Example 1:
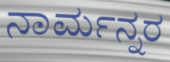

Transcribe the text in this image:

ನಾರ್ಮನ್ನರ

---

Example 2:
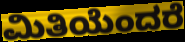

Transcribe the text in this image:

ಮಿತಿಯೆಂದರೆ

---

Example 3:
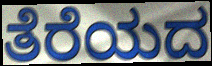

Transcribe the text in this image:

ತೆರೆಯದ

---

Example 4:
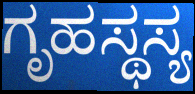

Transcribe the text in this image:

ಗೃಹಸ್ಥಸ್ಯ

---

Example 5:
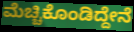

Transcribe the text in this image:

ಮೆಚ್ಚಿಕೊಂಡಿದ್ದೇನೆ